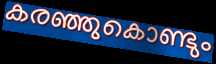
കരഞ്ഞുകൊണ്ടും